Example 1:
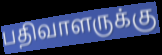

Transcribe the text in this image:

பதிவாளருக்கு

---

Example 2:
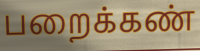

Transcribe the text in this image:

பறைக்கண்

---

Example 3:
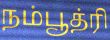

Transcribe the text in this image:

நம்பூத்ரி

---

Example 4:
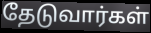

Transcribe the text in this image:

தேடுவார்கள்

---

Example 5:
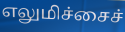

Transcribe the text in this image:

எலுமிச்சைச்